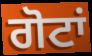
ਗੋਟਾਂ